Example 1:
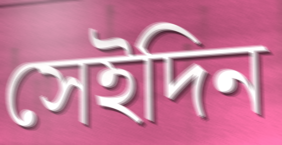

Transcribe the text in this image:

সেইদিন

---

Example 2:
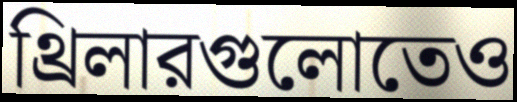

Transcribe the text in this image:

থ্রিলারগুলোতেও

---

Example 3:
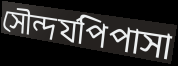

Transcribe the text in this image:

সৌন্দর্যপিপাসা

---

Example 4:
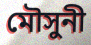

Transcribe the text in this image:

মৌসুনী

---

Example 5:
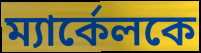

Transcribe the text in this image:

ম্যার্কেলকে